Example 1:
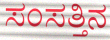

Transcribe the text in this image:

ಸಂಸತ್ತಿನ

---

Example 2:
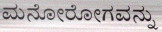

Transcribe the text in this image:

ಮನೋರೋಗವನ್ನು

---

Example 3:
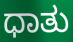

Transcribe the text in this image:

ಧಾತು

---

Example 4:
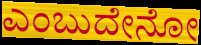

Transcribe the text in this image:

ಎಂಬುದೇನೋ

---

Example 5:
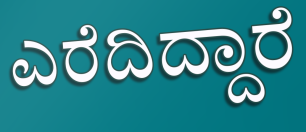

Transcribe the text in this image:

ಎರೆದಿದ್ದಾರೆ